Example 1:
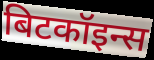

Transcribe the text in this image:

बिटकॉइन्स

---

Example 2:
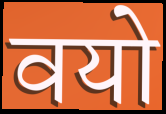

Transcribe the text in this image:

वयो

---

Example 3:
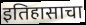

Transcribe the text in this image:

इतिहासाचा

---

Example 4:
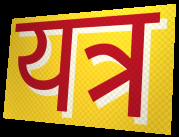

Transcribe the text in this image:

यत्र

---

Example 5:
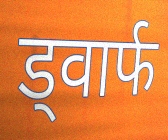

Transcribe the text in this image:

ड्वार्फ